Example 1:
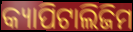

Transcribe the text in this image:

କ୍ୟାପିଟାଲିଜିମ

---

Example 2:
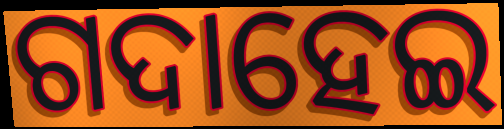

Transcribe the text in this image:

ଗଦାହେଇ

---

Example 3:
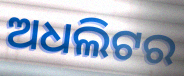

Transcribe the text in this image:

ଅଧଲିଟର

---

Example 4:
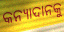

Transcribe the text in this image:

କନ୍ୟାଦାନକୁ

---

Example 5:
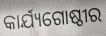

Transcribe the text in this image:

କାର୍ଯ୍ୟଗୋଷ୍ଠୀର